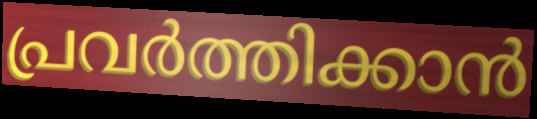
പ്രവർത്തിക്കാൻ